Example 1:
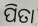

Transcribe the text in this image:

ପିତା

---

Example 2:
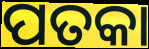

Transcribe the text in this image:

ପତକା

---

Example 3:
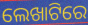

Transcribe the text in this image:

ଲେଖାଟିରେ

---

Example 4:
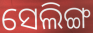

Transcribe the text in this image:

ସେଲିଙ୍ଗ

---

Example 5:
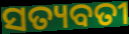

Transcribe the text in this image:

ସତ୍ୟବତୀ